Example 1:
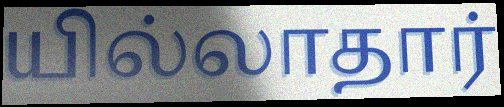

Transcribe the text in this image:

யில்லாதார்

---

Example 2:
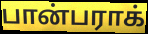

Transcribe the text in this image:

பான்பராக்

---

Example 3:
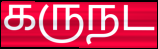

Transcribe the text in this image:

கருநட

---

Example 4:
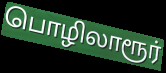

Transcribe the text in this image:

பொழிலாரூர்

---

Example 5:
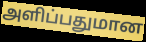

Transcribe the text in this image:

அளிப்பதுமான